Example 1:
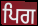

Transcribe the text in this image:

ਪਿਗ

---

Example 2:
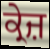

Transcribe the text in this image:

ਕ੍ਰੇਜ਼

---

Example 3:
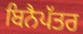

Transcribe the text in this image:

ਬਿਨੈਪੱਤਰ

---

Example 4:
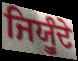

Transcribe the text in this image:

ਜਿਯੂੰਦੇ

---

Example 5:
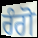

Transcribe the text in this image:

ਰੰਗੋ